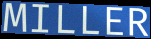
MILLER